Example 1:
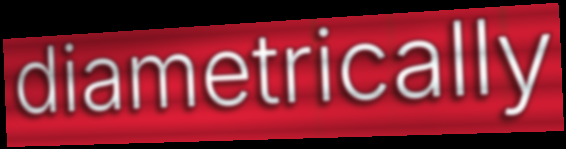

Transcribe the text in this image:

diametrically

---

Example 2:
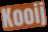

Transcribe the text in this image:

Kooij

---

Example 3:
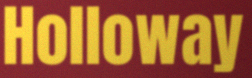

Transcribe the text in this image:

Holloway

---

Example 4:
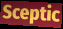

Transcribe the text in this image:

Sceptic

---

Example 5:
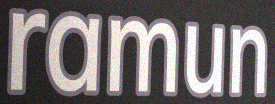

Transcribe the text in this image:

ramun